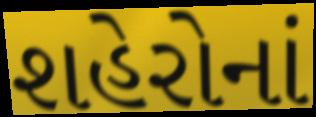
શહેરોનાં